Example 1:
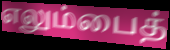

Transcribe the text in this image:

எலும்பைத்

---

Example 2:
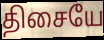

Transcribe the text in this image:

திசையே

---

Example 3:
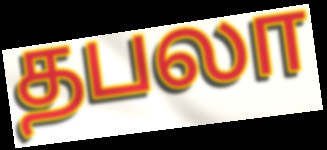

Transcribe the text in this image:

தபலா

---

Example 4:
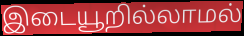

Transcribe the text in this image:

இடையூறில்லாமல்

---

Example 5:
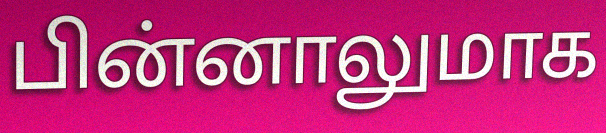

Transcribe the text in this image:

பின்னாலுமாக